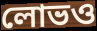
লোভও